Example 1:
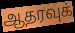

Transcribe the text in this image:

ஆதரவுக்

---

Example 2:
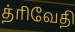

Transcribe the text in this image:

த்ரிவேதி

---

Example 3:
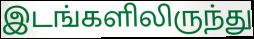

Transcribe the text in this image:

இடங்களிலிருந்து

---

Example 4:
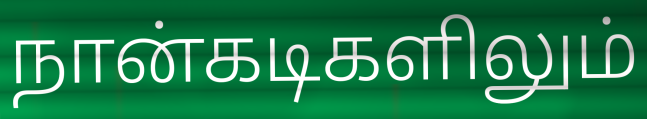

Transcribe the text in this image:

நான்கடிகளிலும்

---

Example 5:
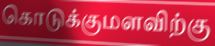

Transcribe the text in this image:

கொடுக்குமளவிற்கு